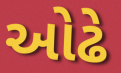
ઓઢે